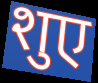
शुए